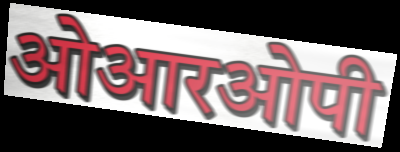
ओआरओपी